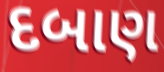
દબાણ